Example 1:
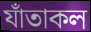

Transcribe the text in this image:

যাঁতাকল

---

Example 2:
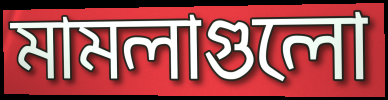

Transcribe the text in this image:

মামলাগুলো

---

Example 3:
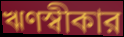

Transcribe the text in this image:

ঋণস্বীকার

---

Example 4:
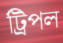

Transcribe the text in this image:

ট্রিপল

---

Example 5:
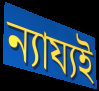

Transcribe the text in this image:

ন্যায্যই